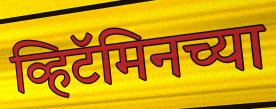
व्हिटॅमिनच्या